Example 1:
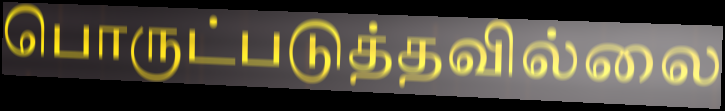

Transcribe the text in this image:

பொருட்படுத்தவில்லை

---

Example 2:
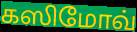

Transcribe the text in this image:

கஸிமோவ்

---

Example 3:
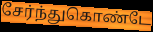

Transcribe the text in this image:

சேர்ந்துகொண்டே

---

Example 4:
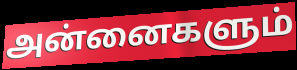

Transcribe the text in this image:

அன்னைகளும்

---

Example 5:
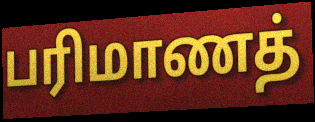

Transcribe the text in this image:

பரிமாணத்